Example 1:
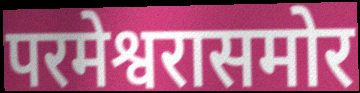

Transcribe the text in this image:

परमेश्वरासमोर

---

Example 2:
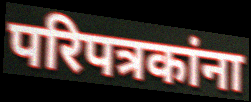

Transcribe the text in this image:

परिपत्रकांना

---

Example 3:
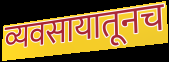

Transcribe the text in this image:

व्यवसायातूनच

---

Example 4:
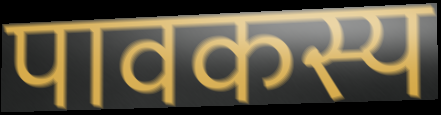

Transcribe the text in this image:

पावकस्य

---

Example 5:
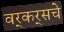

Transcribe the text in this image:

वर्कर्सचे